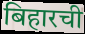
बिहारची